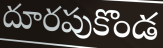
దూరపుకొండ